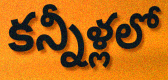
కన్నీళ్లలో